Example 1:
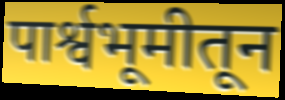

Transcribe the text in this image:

पार्श्वभूमीतून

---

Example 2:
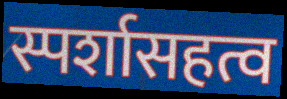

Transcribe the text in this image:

स्पर्शासहत्व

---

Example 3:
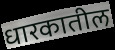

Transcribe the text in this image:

धारकातील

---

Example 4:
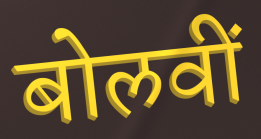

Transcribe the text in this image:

बोलवीं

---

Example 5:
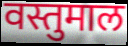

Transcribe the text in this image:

वस्तुमाल